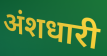
अंशधारी